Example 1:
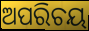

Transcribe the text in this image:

ଅପରିଚୟ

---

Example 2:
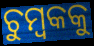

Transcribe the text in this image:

ଚୁମ୍ୱକକୁ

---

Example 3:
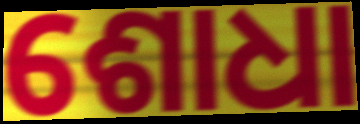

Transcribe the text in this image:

ଶୋଧା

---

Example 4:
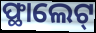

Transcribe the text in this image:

ଫ୍ଥାଲେଟ୍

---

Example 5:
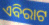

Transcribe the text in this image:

ଏବିରାଟ